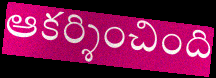
ఆకర్శించింది